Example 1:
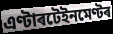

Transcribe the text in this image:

এণ্টাৰটেইনমেণ্টৰ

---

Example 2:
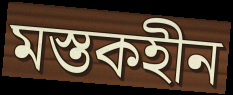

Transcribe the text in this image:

মস্তকহীন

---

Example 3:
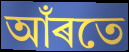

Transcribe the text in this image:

আঁৰতে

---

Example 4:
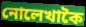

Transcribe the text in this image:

নোলেখাকৈ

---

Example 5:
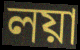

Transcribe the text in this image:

লয়া